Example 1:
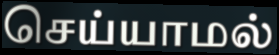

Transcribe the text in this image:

செய்யாமல்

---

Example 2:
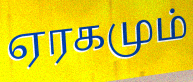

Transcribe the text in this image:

ஏரகமும்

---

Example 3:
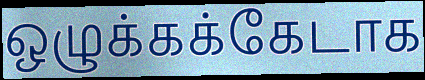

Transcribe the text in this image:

ஒழுக்கக்கேடாக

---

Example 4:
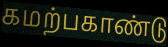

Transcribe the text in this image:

கமற்பகாண்டு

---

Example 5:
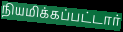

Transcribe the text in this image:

நியமிக்கப்பட்டார்